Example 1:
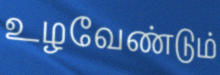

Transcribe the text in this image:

உழவேண்டும்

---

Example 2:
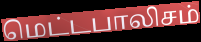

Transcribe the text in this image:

மெட்டபாலிசம்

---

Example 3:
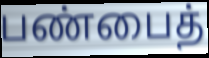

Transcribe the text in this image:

பண்பைத்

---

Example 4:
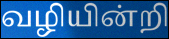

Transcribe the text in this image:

வழியின்றி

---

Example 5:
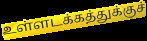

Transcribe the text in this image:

உள்ளடக்கத்துக்குச்